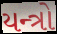
યન્ત્રો